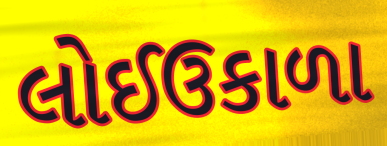
લોઈઉકાળા